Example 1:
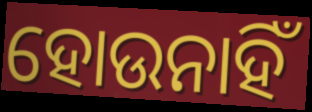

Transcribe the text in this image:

ହୋଉନାହିଁ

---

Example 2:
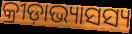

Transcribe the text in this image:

କ୍ରୀଡ଼ାଭ୍ୟାସସ୍ୟ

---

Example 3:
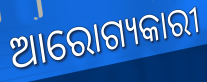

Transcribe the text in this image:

ଆରୋଗ୍ୟକାରୀ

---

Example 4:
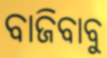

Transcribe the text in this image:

ବାଜିବାବୁ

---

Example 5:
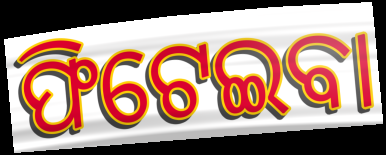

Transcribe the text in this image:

ଫିଟେଇବା